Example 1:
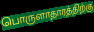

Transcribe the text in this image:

பொருளாதாரத்திற்கு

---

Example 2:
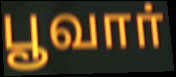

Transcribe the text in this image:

பூவார்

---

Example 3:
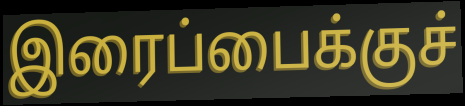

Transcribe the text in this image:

இரைப்பைக்குச்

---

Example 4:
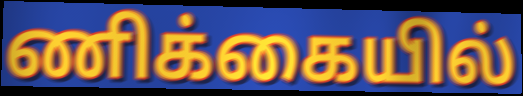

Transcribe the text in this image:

ணிக்கையில்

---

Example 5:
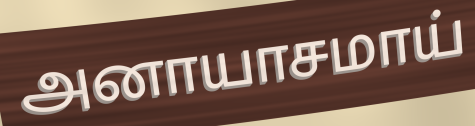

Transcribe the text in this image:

அனாயாசமாய்